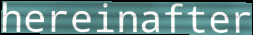
hereinafter